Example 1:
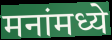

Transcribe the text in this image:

मनांमध्ये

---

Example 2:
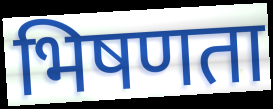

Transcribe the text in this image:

भिषणता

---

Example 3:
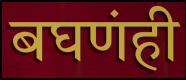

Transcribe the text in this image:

बघणंही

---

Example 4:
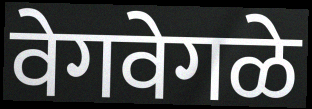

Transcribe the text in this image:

वेगवेगळे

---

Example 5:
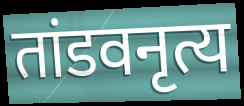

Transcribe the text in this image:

तांडवनृत्य